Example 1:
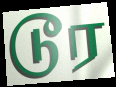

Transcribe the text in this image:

டூர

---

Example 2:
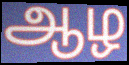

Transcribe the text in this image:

ஆழ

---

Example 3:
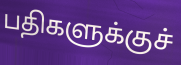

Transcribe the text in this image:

பதிகளுக்குச்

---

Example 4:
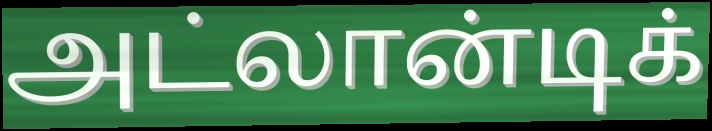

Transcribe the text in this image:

அட்லான்டிக்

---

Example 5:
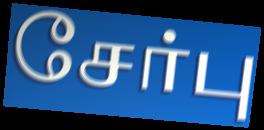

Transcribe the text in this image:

சேர்பு